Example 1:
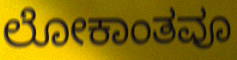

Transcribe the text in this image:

ಲೋಕಾಂತವೂ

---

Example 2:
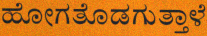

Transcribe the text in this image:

ಹೋಗತೊಡಗುತ್ತಾಳೆ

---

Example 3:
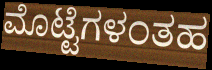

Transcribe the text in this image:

ಮೊಟ್ಟೆಗಳಂತಹ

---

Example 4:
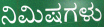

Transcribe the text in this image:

ನಿಮಿಷಗಳು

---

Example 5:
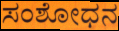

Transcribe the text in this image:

ಸಂಶೋಧನ